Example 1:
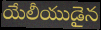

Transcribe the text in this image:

యేలీయుడైన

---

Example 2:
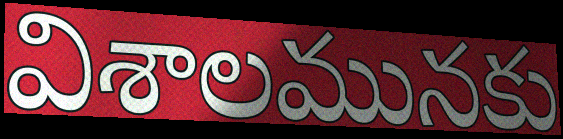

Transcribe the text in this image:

విశాలమునకు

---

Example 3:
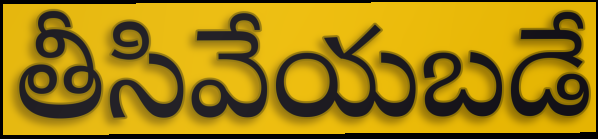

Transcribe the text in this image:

తీసివేయబడే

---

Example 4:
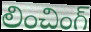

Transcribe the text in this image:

లించింగ్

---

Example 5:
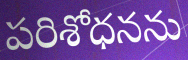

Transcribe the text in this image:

పరిశోధనను